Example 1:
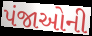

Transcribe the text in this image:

પંજાઓની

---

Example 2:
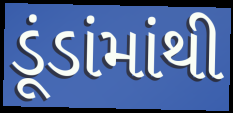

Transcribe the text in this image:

ડૂંડાંમાંથી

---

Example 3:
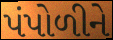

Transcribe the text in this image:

પંપોળીને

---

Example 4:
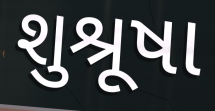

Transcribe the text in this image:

શુશ્રૂષા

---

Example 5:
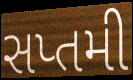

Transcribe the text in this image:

સપ્તમી